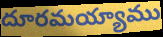
దూరమయ్యాము